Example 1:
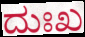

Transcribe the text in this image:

ದುಃಖ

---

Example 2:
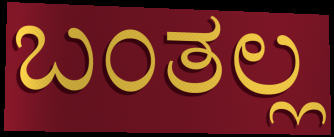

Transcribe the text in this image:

ಬಂತಲ್ಲ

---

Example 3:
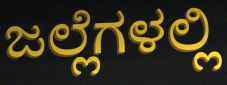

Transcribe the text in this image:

ಜಲ್ಲೆಗಳಲ್ಲಿ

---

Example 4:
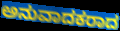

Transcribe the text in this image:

ಅನುವಾದಕರಾದ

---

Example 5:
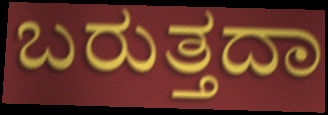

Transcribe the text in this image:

ಬರುತ್ತದಾ